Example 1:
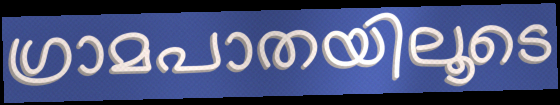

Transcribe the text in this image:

ഗ്രാമപാതയിലൂടെ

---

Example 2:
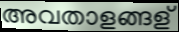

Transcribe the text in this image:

അവതാളങ്ങള്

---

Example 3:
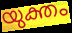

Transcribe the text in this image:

യുക്തം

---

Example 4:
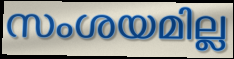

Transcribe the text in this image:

സംശയമില്ല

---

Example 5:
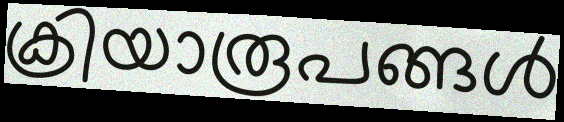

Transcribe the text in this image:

ക്രിയാരൂപങ്ങൾ